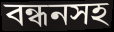
বন্ধনসহ